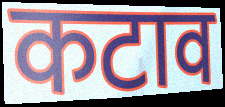
कटाव